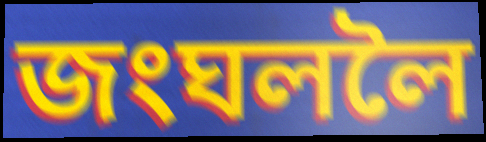
জংঘললৈ